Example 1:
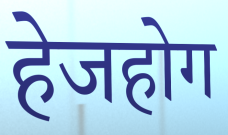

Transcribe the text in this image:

हेजहोग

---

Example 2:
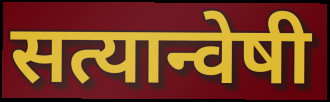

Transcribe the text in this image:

सत्यान्वेषी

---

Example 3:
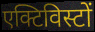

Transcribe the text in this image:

एक्टिविस्टों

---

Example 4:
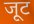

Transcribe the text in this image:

जूट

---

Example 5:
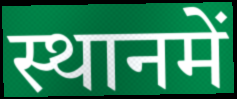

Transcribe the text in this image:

स्थानमें